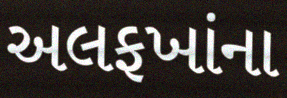
અલફખાંના